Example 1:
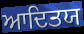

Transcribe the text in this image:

ਆਦਿਤਯ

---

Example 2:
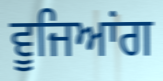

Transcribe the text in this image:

ਵੂਜਿਆਂਗ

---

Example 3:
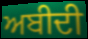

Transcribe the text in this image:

ਅਬੀਦੀ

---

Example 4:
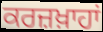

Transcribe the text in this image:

ਕਰਜ਼ਖ਼ਾਹਾਂ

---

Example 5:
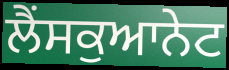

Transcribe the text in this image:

ਲੈਂਸਕੁਆਨੇਟ